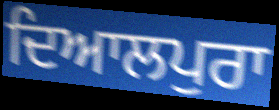
ਦਿਆਲਪੁਰਾ